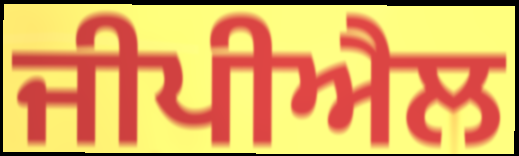
ਜੀਪੀਐਲ